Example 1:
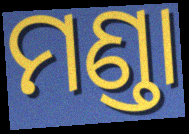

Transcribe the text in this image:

ମଣ୍ଡା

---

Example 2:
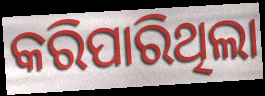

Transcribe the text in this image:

କରିପାରିଥିଲା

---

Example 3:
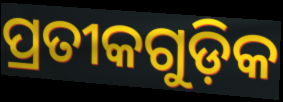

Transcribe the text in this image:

ପ୍ରତୀକଗୁଡ଼ିକ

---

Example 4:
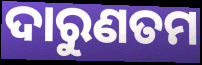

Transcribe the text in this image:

ଦାରୁଣତମ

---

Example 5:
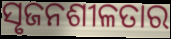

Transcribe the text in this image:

ସୃଜନଶୀଳତାର